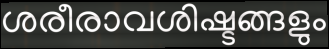
ശരീരാവശിഷ്ടങ്ങളും